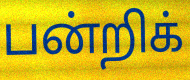
பன்றிக்